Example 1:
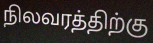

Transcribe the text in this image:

நிலவரத்திற்கு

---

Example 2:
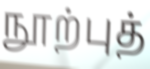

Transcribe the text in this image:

நூற்புத்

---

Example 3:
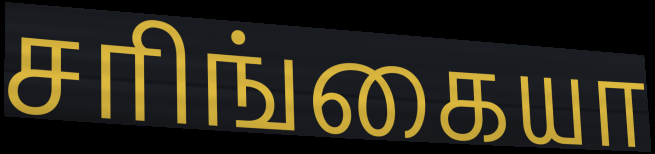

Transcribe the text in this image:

சரிங்கையா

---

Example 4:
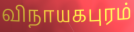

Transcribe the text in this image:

விநாயகபுரம்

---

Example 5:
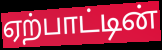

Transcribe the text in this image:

ஏற்பாட்டின்